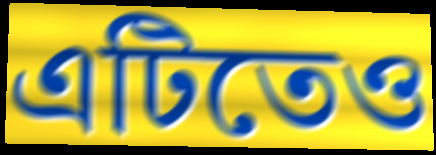
এটিতেও